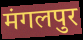
मंगलपुर